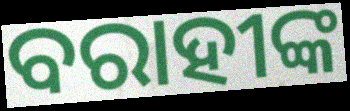
ବରାହୀଙ୍କ